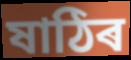
ষাঠিৰ